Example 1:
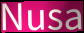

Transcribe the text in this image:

Nusa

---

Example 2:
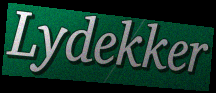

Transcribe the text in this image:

Lydekker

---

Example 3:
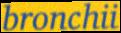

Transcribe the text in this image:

bronchii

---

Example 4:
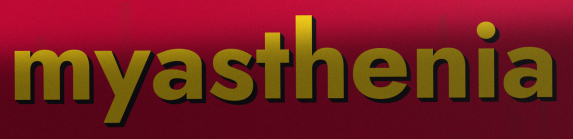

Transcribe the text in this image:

myasthenia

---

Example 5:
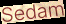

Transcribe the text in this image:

Sedam